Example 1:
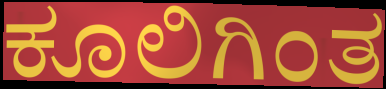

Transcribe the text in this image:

ಕೂಲಿಗಿಂತ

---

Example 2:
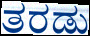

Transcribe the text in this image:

ತರಡು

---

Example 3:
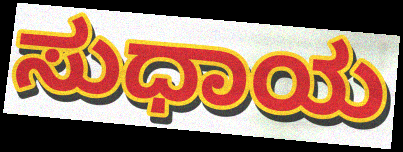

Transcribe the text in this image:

ಸುಧಾಯ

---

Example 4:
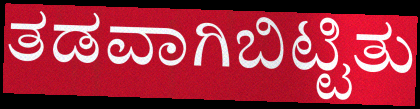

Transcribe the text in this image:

ತಡವಾಗಿಬಿಟ್ಟಿತು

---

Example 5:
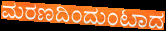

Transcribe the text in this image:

ಮರಣದಿಂದುಂಟಾದ